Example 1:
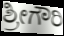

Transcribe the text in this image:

ಶ್ರೀಗೌರಿ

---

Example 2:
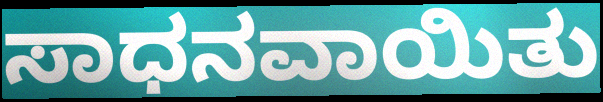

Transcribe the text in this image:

ಸಾಧನವಾಯಿತು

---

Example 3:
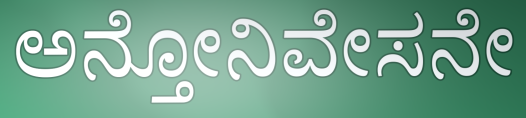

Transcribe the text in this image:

ಅನ್ತೋನಿವೇಸನೇ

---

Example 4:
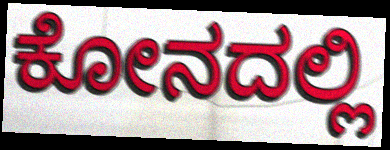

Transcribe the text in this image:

ಕೋನದಲ್ಲಿ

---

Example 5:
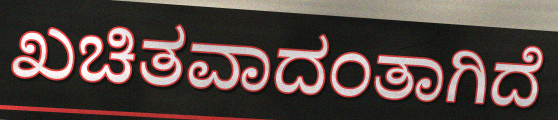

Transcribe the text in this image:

ಖಚಿತವಾದಂತಾಗಿದೆ